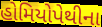
હોમિયોપેથીના